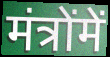
मंत्रोंमें